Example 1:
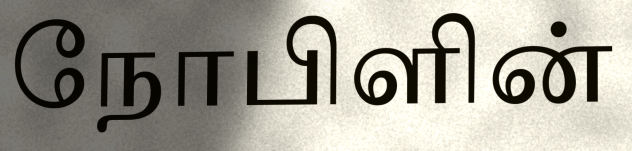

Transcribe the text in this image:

நோபிளின்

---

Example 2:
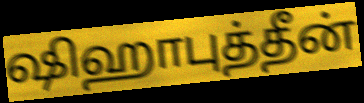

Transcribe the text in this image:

ஷிஹாபுத்தீன்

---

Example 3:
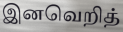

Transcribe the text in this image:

இனவெறித்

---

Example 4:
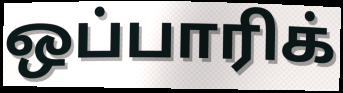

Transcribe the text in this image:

ஒப்பாரிக்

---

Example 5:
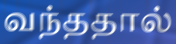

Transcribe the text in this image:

வந்ததால்